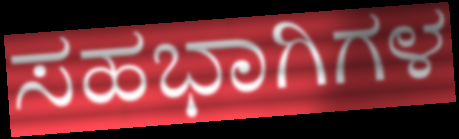
ಸಹಭಾಗಿಗಳ